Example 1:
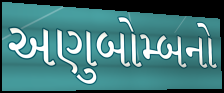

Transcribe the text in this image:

અણુબોમ્બનો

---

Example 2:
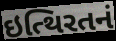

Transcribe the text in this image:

ઇત્થિરતનં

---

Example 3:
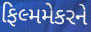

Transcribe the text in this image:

ફિલ્મમેકરને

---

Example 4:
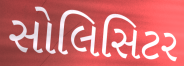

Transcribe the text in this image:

સોલિસિટર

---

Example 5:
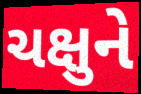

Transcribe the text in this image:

ચક્ષુને